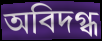
অবিদগ্ধ